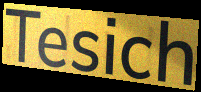
Tesich